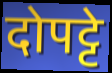
दोपट्टे